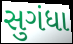
સુગંધા